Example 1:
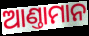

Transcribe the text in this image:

ଆଣ୍ତାମାନ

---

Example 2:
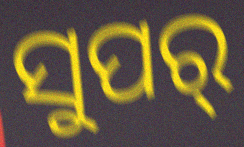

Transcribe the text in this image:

ସୁପର୍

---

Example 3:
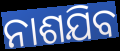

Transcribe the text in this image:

ନାଶଯିବ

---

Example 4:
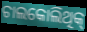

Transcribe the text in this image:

ଚାଲକୋଲିଥିକ୍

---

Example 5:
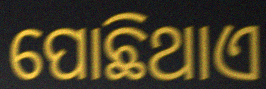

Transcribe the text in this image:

ପୋଛିଥାଏ